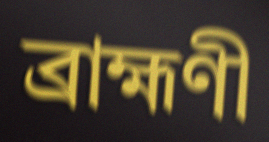
ব্ৰাহ্মণী